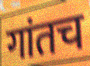
गांतच